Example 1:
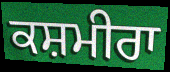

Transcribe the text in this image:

ਕਸ਼ਮੀਰਾ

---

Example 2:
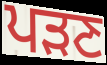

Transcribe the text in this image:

ਪੜਣ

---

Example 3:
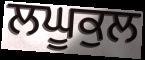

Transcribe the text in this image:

ਲਘੂਕੁਲ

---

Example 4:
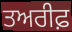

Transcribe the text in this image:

ਤਅਰੀਫ਼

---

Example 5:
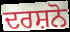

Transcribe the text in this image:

ਦਰਸ਼ਨੋ